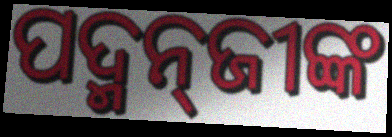
ପଦ୍ମନ୍‌ଜୀଙ୍କ